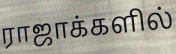
ராஜாக்களில்